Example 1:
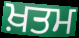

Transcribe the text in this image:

ਖ਼ਤਮ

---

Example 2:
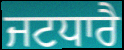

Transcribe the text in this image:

ਜਟਧਾਰੈ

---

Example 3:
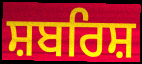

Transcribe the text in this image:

ਸ਼ਬਰਿਸ਼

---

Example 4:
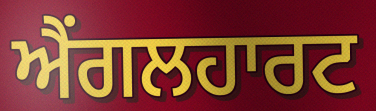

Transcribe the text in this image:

ਐਂਗਲਹਾਰਟ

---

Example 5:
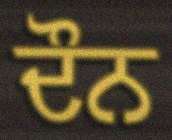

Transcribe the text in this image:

ਦੌਨ